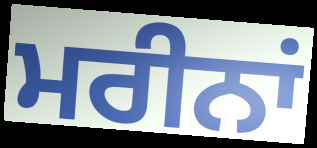
ਮਰੀਨਾਂ